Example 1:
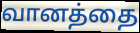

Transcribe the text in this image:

வானத்தை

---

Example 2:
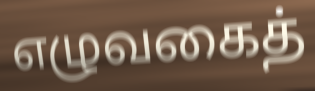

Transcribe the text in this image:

எழுவகைத்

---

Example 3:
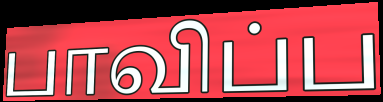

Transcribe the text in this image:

பாவிப்ப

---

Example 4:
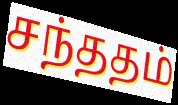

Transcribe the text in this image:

சந்ததம்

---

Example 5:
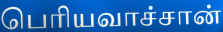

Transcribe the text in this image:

பெரியவாச்சான்